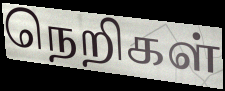
நெறிகள்